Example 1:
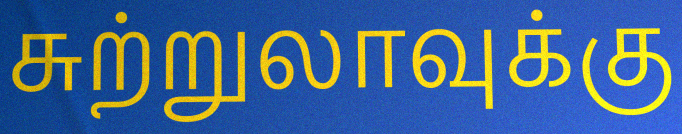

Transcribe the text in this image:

சுற்றுலாவுக்கு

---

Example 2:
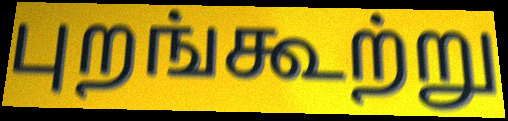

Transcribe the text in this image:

புறங்கூற்று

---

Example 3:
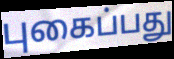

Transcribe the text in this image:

புகைப்பது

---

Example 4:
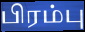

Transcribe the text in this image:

பிரம்பு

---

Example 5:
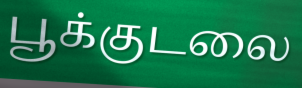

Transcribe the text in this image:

பூக்குடலை